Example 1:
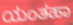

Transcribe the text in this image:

ಯಂತಹಾ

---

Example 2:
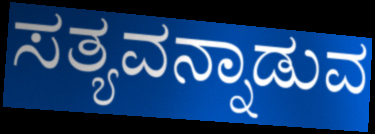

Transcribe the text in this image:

ಸತ್ಯವನ್ನಾಡುವ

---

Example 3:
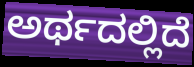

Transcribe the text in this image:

ಅರ್ಥದಲ್ಲಿದೆ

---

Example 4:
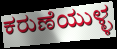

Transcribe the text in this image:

ಕರುಣೆಯುಳ್ಳ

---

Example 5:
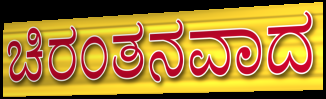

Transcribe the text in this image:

ಚಿರಂತನವಾದ